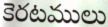
కెరటములు